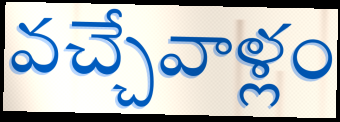
వచ్చేవాళ్లం